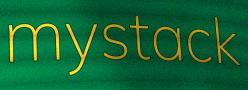
mystack